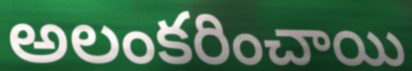
అలంకరించాయి